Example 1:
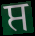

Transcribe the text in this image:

प्त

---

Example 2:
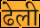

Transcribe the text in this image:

ढेली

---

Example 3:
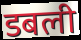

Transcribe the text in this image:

डबली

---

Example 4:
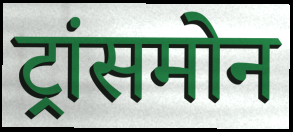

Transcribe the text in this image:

ट्रांसमोन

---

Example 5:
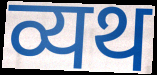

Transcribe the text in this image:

व्यथ